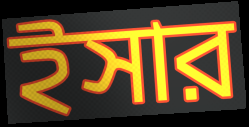
ইসার